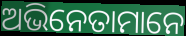
ଅଭିନେତାମାନେ